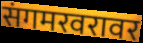
संगमरवरावर